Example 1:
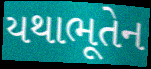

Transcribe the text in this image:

યથાભૂતેન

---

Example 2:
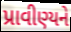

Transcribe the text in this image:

પ્રાવીણ્યને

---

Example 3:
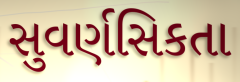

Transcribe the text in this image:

સુવર્ણસિકતા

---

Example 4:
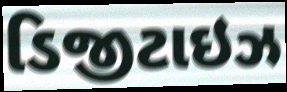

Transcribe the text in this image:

ડિજીટાઇઝ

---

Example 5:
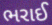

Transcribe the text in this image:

ભરાઈ